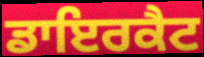
ਡਾਇਰਕੈਟ